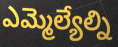
ఎమ్మెల్యేల్ని